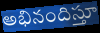
అభినందిస్తూ